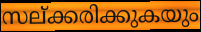
സല്ക്കരിക്കുകയും